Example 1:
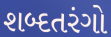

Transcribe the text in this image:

શબ્દતરંગો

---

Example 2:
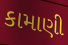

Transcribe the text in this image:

કામાણી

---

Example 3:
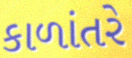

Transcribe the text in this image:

કાળાંતરે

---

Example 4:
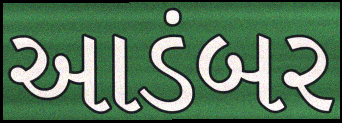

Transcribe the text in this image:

આડંબર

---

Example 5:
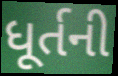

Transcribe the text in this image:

ધૂર્તની